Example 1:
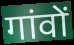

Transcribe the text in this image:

गांवों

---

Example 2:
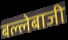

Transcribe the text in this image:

बल्लेबाजी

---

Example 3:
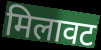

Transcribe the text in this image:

मिलावट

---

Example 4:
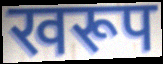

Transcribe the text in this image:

खरूप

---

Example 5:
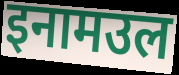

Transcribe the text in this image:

इनामउल